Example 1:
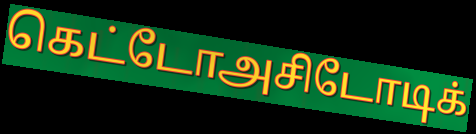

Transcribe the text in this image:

கெட்டோஅசிடோடிக்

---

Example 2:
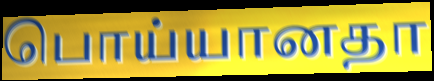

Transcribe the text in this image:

பொய்யானதா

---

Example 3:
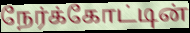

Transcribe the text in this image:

நேர்க்கோட்டின்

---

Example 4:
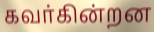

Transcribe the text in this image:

கவர்கின்றன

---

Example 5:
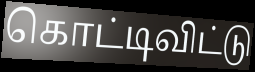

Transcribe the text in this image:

கொட்டிவிட்டு